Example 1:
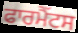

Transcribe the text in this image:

ਫਾਰਮੈੱਟਸ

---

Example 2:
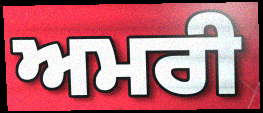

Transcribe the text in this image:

ਅਮਰੀ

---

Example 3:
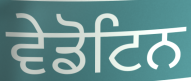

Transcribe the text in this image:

ਵੇਡੋਟਿਨ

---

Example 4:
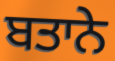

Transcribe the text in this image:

ਬਤਾਨੇ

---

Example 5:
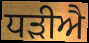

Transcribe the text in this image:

ਧੜੀਐ